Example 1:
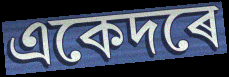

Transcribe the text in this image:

একেদৰে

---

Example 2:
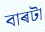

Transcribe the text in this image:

বাৰটা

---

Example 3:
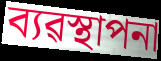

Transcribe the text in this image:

ব্যৱস্থাপনা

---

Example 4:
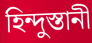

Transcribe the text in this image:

হিন্দুস্তানী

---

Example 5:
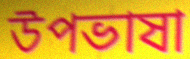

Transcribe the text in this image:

উপভাষা